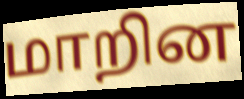
மாறின